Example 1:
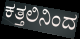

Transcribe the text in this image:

ಕತ್ತಲಿನಿಂದ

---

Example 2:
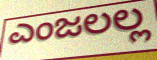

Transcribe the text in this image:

ಎಂಜಲಲ್ಲ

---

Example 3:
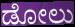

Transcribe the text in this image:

ಡೋಲು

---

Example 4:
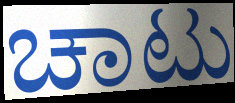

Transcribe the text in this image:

ಚಾಟು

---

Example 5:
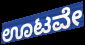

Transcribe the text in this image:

ಊಟವೇ